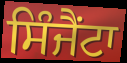
ਸਿੰਜੈਂਟਾ